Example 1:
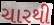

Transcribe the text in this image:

ચારથી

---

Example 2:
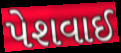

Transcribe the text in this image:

પેશવાઈ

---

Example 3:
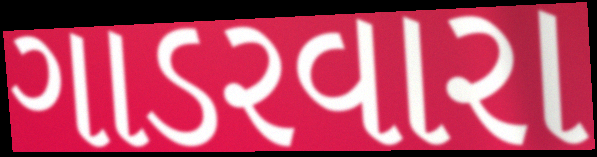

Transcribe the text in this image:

ગાડરવારા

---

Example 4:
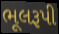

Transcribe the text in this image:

ભૂલરૂપી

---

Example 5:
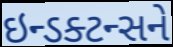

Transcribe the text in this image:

ઇન્ડક્ટન્સને